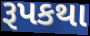
રૂપકથા